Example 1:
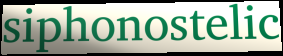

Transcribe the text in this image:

siphonostelic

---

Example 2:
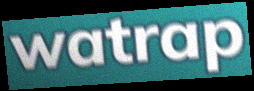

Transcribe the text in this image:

watrap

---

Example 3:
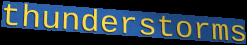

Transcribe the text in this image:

thunderstorms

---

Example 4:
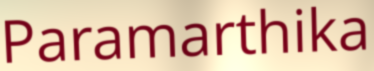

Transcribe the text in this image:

Paramarthika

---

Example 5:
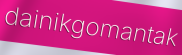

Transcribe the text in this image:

dainikgomantak